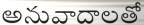
అనువాదాలతో